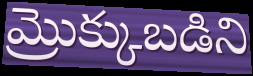
మ్రొక్కుబడిని